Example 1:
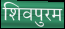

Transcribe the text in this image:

शिवपुरम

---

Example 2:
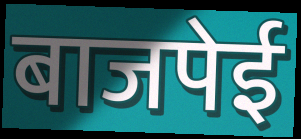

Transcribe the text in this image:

बाजपेई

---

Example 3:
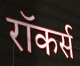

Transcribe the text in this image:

रॉकर्स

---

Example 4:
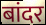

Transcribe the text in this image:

बांदर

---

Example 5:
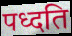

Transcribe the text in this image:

पध्दति